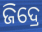
ଜିଦ୍ରେ